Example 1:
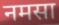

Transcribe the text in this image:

नमसा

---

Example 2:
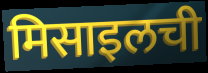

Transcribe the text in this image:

मिसाइलची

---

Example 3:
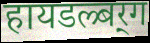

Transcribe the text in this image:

हायडल्बर्ग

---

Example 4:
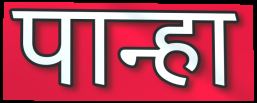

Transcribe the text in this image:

पान्हा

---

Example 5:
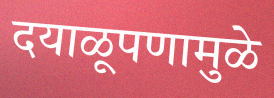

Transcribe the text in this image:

दयाळूपणामुळे